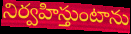
నిర్వహిస్తుంటాను